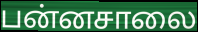
பன்னசாலை